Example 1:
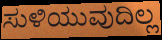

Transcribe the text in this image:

ಸುಳಿಯುವುದಿಲ್ಲ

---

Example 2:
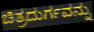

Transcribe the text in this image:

ಚಿತ್ರದುರ್ಗವನ್ನು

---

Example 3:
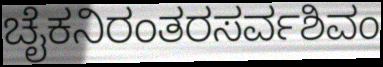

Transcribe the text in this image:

ಚೈಕನಿರಂತರಸರ್ವಶಿವಂ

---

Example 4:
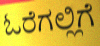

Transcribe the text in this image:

ಓರೆಗಲ್ಲಿಗೆ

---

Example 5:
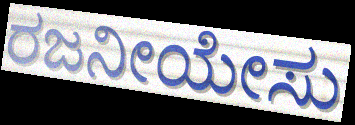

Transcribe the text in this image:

ರಜನೀಯೇಸು